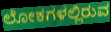
ಲೋಕಗಳಲ್ಲಿರುವ